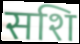
सशि